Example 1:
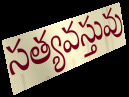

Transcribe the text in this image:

సత్యవస్తువు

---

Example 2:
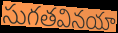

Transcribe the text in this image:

సుగతవినయా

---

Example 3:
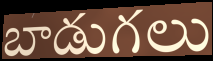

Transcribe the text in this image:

బాడుగలు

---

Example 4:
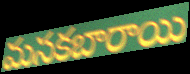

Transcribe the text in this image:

మసకబారాయి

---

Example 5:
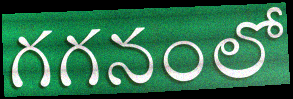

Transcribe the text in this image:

గగనంలో